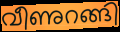
വീണുറങ്ങി